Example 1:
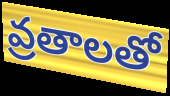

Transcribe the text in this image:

వ్రతాలతో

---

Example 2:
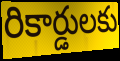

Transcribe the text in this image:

రికార్డులకు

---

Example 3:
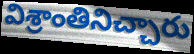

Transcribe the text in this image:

విశ్రాంతినిచ్చారు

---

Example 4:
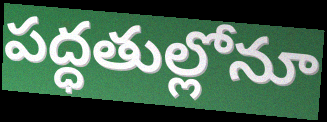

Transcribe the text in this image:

పద్ధతుల్లోనూ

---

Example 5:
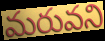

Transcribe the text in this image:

మరువని